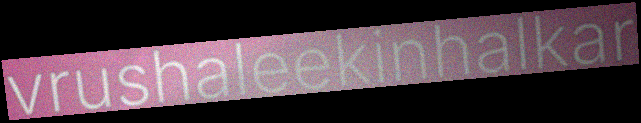
vrushaleekinhalkar